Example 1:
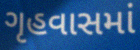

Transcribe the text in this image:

ગૃહવાસમાં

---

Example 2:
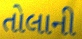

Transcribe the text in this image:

તોલાની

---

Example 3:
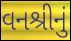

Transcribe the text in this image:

વનશ્રીનું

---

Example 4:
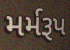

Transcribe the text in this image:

મર્મરૂપ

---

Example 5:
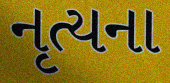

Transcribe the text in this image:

નૃત્યના